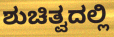
ಶುಚಿತ್ವದಲ್ಲಿ